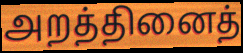
அறத்தினைத்